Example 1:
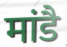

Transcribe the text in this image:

मांडै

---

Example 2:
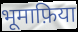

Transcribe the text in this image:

भूमाफ़िया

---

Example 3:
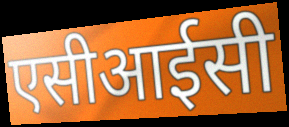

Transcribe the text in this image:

एसीआईसी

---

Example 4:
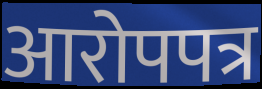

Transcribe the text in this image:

आरोपपत्र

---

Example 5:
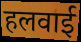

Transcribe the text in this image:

हलवाई